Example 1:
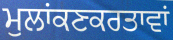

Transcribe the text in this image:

ਮੁਲਾਂਕਣਕਰਤਾਵਾਂ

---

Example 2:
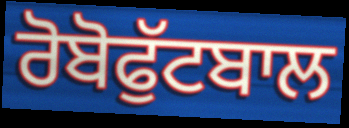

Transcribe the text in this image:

ਰੋਬੋਫੁੱਟਬਾਲ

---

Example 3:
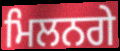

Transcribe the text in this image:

ਮਿਲਨਗੇ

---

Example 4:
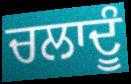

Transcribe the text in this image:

ਚਲਾਦੂੰ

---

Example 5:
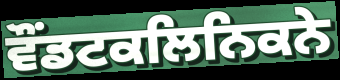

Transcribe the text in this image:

ਵੌਂਡਟਕਲਿਨਿਕਨੇ